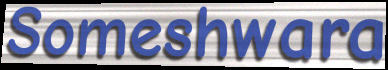
Someshwara